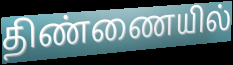
திண்ணையில்